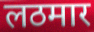
लठमार